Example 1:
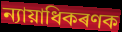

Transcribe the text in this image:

ন্যায়াধিকৰণক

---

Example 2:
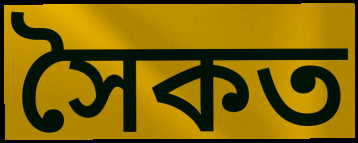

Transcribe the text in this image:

সৈকত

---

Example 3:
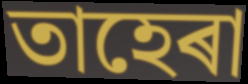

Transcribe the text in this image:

তাহেৰা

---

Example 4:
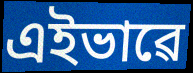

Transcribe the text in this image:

এইভাৱে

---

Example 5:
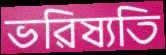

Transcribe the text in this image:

ভৱিষ্যতি